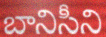
బానిసీని